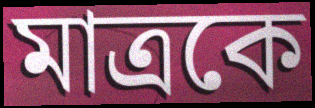
মাত্ৰকে